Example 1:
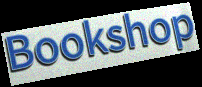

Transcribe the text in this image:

Bookshop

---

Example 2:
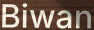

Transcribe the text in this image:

Biwan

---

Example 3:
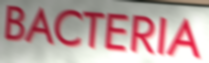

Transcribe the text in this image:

BACTERIA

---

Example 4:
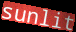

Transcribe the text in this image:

sunlit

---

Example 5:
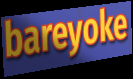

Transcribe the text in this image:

bareyoke